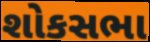
શોકસભા